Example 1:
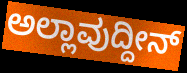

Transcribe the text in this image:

ಅಲ್ಲಾವುದ್ದೀನ್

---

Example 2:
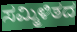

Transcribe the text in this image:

ಸಮ್ಮಿಳಿತದ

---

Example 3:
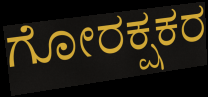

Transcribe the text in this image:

ಗೋರಕ್ಷಕರ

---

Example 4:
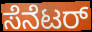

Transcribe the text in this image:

ಸೆನೆಟರ್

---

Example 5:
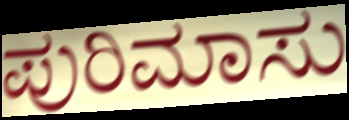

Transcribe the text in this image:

ಪುರಿಮಾಸು